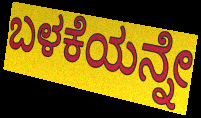
ಬಳಕೆಯನ್ನೇ